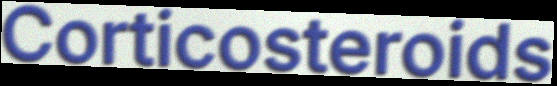
Corticosteroids